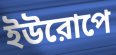
ইউরোপে